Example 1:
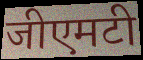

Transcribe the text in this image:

जीएमटी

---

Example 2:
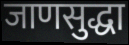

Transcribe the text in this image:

जाणसुद्धा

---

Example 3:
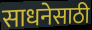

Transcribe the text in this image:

साधनेसाठी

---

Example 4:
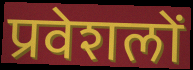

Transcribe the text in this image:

प्रवेशलों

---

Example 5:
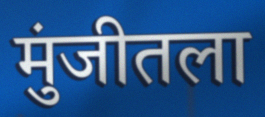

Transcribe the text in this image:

मुंजीतला